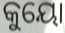
କୁୟୋ